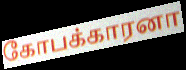
கோபக்காரனா